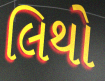
લિથો